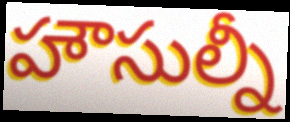
హౌసుల్నీ